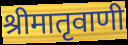
श्रीमातृवाणी